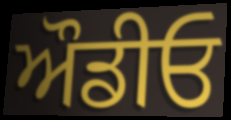
ਔਡੀਓ